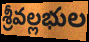
శ్రీవల్లభుల